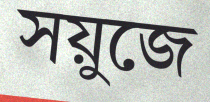
সয়ুজে